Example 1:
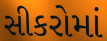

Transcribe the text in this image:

સીકરોમાં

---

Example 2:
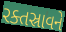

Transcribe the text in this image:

રક્તસ્રાવને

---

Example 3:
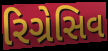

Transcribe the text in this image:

રિગ્રેસિવ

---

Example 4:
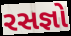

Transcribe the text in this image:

રસજ્ઞો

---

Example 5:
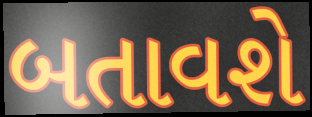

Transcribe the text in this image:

બતાવશે